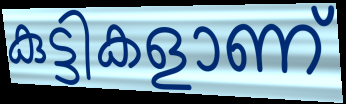
കുട്ടികളാണ്